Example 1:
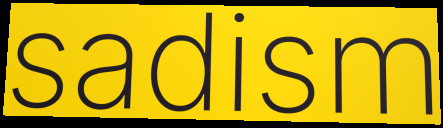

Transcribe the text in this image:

sadism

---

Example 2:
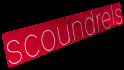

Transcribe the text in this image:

scoundrels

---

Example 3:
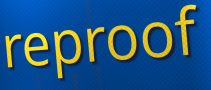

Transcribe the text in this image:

reproof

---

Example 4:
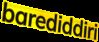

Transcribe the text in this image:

barediddiri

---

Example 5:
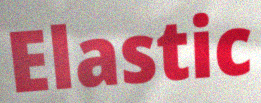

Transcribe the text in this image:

Elastic